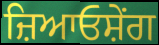
ਜ਼ਿਆਓਸ਼ੇਂਗ